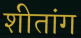
शीतांग